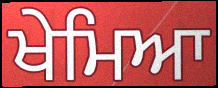
ਖੇਮਿਆ